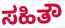
ಸಹಿತೌ